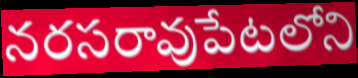
నరసరావుపేటలోని